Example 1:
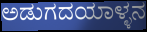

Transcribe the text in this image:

ಅಡುಗದಯಾಳ್ಳನ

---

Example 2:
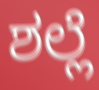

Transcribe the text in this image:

ಶಲ್ಲೆ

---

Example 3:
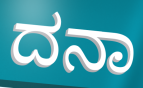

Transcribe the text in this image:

ದನಾ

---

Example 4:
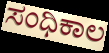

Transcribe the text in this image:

ಸಂಧಿಕಾಲ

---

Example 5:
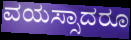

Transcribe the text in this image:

ವಯಸ್ಸಾದರೂ